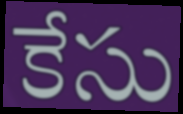
కేసు